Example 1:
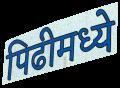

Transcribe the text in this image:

पिढीमध्ये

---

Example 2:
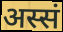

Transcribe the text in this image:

अस्सं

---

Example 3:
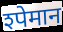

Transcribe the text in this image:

श्पेमान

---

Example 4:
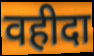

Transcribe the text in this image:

वहीदा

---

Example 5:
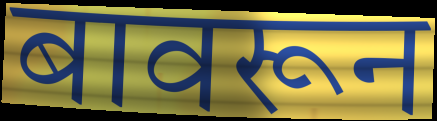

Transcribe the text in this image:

बावरून